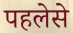
पहलेसे